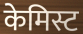
केमिस्ट